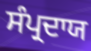
ਸੰਪ੍ਰਦਾਯ